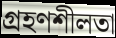
গ্রহণশীলতা